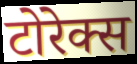
टोरेक्स